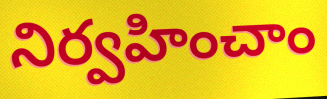
నిర్వహించాం